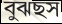
বুঝছস